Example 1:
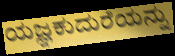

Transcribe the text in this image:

ಯಜ್ಞಕುದುರೆಯನ್ನು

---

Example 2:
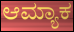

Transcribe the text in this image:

ಆಮ್ಯಾಕ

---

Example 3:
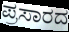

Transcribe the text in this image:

ಪ್ರಸಾರದ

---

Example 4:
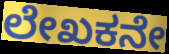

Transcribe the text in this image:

ಲೇಖಕನೇ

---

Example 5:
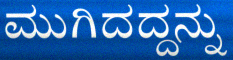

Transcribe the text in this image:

ಮುಗಿದದ್ದನ್ನು